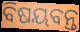
ବିଷୟବନ୍ତ